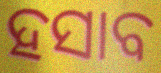
ହସାବ